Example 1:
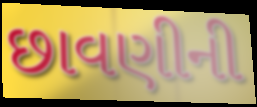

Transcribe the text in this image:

છાવણીની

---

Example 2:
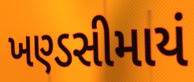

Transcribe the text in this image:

ખણ્ડસીમાયં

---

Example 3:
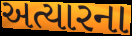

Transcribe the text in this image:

અત્યારના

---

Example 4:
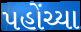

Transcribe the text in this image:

પહોંચ્યા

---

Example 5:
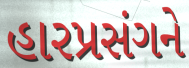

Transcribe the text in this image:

હારપ્રસંગને